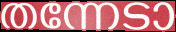
തന്നേടാ